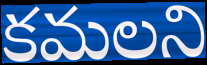
కమలని